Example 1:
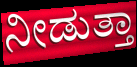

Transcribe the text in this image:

ನೀಡುತ್ತಾ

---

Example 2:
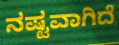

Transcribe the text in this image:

ನಷ್ಟವಾಗಿದೆ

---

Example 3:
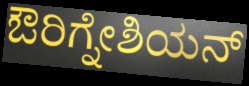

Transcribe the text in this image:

ಔರಿಗ್ನೇಶಿಯನ್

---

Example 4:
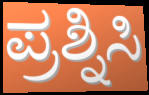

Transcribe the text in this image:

ಪ್ರಶ್ನಿಸಿ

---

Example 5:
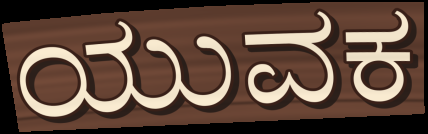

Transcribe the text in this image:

ಯುವಕ